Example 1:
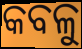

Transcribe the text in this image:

କବଳୁ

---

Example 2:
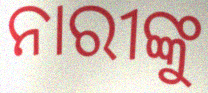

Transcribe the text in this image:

ନାରୀଙ୍କୁ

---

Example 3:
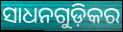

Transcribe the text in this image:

ସାଧନଗୁଡ଼ିକର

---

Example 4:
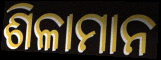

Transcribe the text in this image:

ଶିଳାମାନ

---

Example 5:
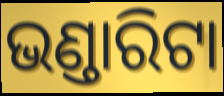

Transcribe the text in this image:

ଭଣ୍ଡାରିଟା